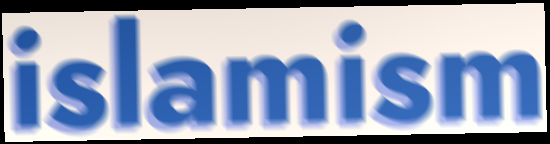
islamism